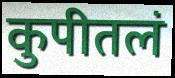
कुपीतलं